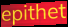
epithet